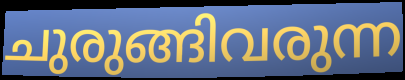
ചുരുങ്ങിവരുന്ന